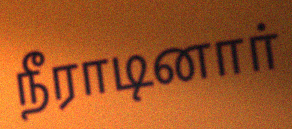
நீராடினார்